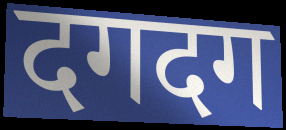
दगदग